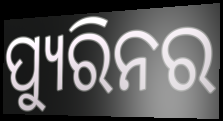
ପ୍ୟୁରିନର